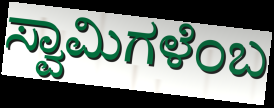
ಸ್ವಾಮಿಗಳೆಂಬ